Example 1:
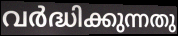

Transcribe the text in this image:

വർദ്ധിക്കുന്നതു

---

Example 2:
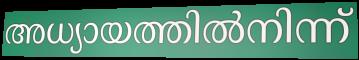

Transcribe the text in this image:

അധ്യായത്തിൽനിന്ന്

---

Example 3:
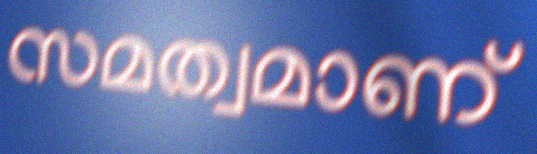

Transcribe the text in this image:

സമത്വമാണ്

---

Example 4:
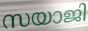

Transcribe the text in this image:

സയാജി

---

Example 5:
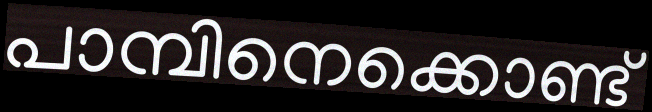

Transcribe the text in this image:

പാമ്പിനെക്കൊണ്ട്